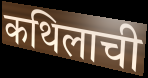
कथिलाची